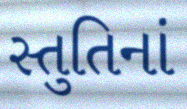
સ્તુતિનાં